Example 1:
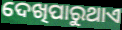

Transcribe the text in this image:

ଦେଖିପାରୁଥାଏ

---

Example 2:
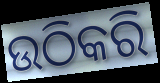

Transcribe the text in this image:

ଉଠିକରି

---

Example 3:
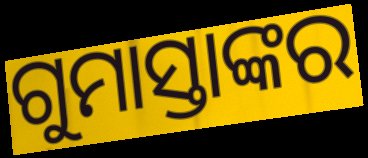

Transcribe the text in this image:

ଗୁମାସ୍ତାଙ୍କର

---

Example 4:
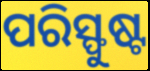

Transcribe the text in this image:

ପରିସ୍ଫୁଷ୍ଟ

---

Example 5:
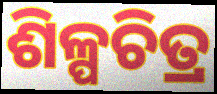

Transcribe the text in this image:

ଶିଳ୍ପଚିତ୍ର